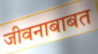
जीवनाबाबत